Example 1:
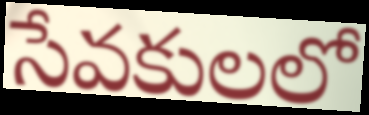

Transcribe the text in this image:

సేవకులలో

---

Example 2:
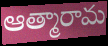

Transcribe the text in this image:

ఆత్మారామ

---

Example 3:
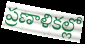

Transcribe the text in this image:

ప్రణాళికల్లో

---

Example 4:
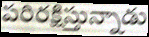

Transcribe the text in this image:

పరిరక్షిస్తున్నాడు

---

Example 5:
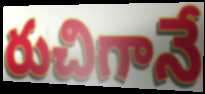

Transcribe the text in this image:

రుచిగానే